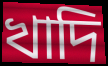
খাদি